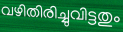
വഴിതിരിച്ചുവിട്ടതും